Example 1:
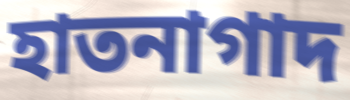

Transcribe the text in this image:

হাতনাগাদ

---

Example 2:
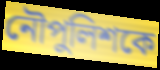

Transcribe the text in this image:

নৌপুলিশকে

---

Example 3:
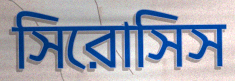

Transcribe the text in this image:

সিরোসিস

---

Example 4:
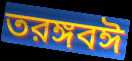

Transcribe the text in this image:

তরঙ্গবঈ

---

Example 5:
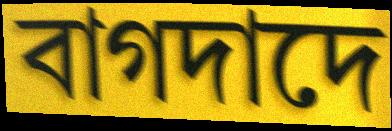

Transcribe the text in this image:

বাগদাদে